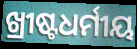
ଖ୍ରୀଷ୍ଟଧର୍ମୀୟ